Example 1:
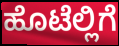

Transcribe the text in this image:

ಹೊಟೆಲ್ಲಿಗೆ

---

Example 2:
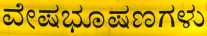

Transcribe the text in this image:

ವೇಷಭೂಷಣಗಳು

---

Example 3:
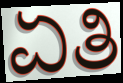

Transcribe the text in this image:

ಏತಿ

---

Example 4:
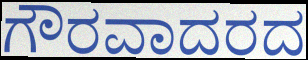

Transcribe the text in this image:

ಗೌರವಾದರದ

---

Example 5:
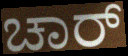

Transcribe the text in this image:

ಚಾರ್